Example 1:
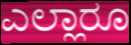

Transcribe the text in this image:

ಎಲ್ಲಾರೂ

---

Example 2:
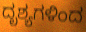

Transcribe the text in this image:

ದೃಶ್ಯಗಳಿಂದ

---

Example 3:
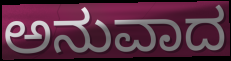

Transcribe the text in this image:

ಅನುವಾದ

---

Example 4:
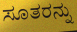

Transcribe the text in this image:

ಸೂತರನ್ನು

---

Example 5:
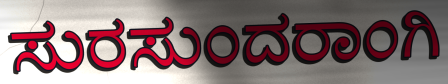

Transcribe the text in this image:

ಸುರಸುಂದರಾಂಗಿ